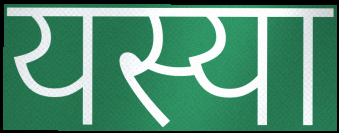
यस्या